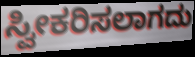
ಸ್ವೀಕರಿಸಲಾಗದು